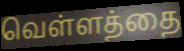
வெள்ளத்தை